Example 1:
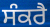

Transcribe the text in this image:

ਸੰਕਰੈ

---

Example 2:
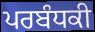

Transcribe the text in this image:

ਪਰਬੰਧਕੀ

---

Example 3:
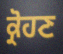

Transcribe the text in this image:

ਕ੍ਰੋਹਣ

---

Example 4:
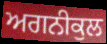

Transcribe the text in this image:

ਅਗਨੀਕੁਲ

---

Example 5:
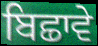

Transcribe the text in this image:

ਬਿਛਾਵੇ